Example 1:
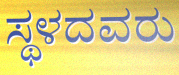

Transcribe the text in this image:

ಸ್ಥಳದವರು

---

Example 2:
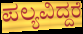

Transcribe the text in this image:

ಪಲ್ಯವಿದ್ದರೆ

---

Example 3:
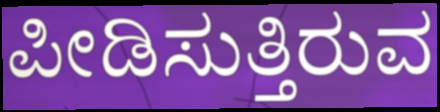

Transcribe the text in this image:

ಪೀಡಿಸುತ್ತಿರುವ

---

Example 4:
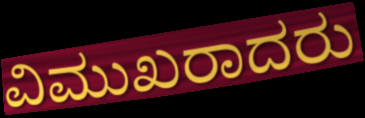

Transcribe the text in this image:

ವಿಮುಖರಾದರು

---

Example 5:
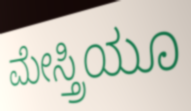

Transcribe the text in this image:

ಮೇಸ್ತ್ರಿಯೂ